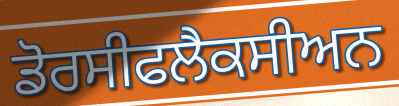
ਡੋਰਸੀਫਲੈਕਸੀਅਨ